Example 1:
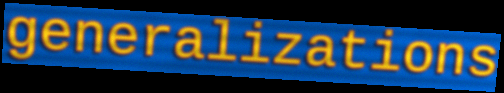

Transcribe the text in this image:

generalizations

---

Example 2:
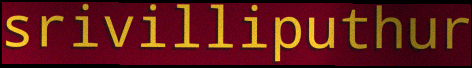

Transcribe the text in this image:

srivilliputhur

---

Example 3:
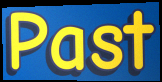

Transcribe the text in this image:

Past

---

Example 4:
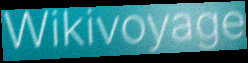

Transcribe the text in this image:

Wikivoyage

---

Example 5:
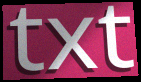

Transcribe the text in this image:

txt